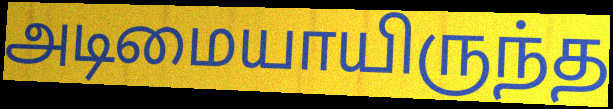
அடிமையாயிருந்த